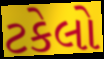
ટકેલો